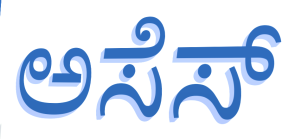
ಅಸೆಸ್